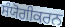
ਸੰਯੋਗੀਕਰਨ